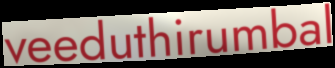
veeduthirumbal